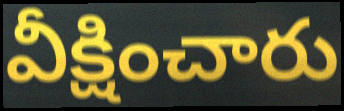
వీక్షించారు